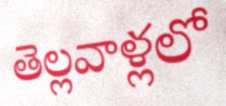
తెల్లవాళ్లలో